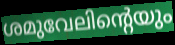
ശമുവേലിന്റെയും